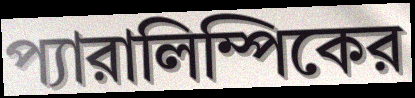
প্যারালিম্পিকের